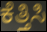
ಕೆತ್ತಿಸಿ